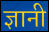
ज्ञानी